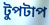
টুপটাপ